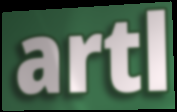
artl